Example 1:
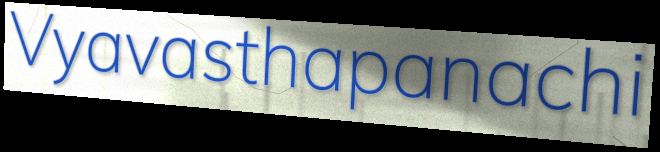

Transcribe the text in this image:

Vyavasthapanachi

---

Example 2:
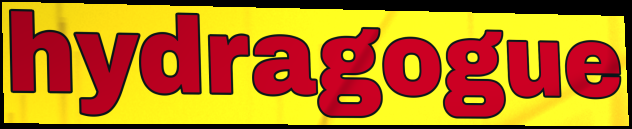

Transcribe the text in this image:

hydragogue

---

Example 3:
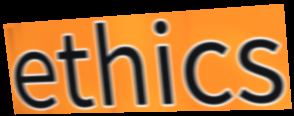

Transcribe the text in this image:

ethics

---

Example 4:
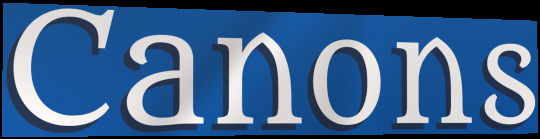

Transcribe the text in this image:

Canons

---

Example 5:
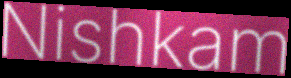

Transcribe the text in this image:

Nishkam